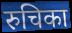
रुचिका